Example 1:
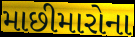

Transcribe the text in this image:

માછીમારોના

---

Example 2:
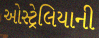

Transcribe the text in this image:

ઓસ્ટ્રેલિયાની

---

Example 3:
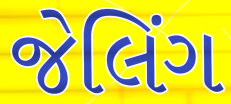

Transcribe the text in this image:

જેલિંગ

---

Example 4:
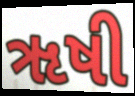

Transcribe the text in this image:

ૠષી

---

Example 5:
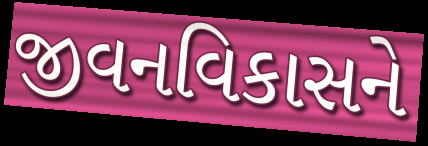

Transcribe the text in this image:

જીવનવિકાસને